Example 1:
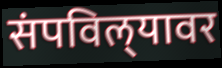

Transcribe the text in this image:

संपविल्यावर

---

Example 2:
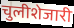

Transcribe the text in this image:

चुलीशेजारी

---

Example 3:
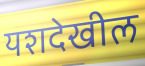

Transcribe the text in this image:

यशदेखील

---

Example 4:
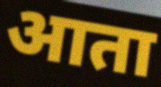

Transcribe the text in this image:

आता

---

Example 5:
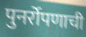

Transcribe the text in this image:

पुनर्रोपणाची